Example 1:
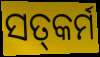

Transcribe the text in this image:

ସତ୍‍କର୍ମ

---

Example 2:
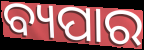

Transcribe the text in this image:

ବ୍ୟପାର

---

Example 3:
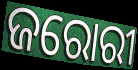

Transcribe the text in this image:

ଜରୋରୀ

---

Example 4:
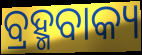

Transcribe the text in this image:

ବ୍ରହ୍ମବାକ୍ୟ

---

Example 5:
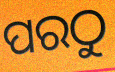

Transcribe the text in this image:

ପରଠୁ